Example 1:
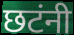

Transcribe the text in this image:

छटंनी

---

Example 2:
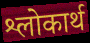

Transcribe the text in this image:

श्लोकार्थ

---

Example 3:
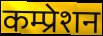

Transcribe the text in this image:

कम्प्रेशन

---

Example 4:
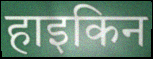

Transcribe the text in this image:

हाइकिन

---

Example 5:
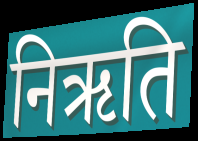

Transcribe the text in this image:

निऋति